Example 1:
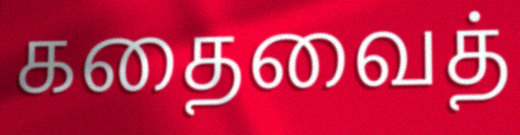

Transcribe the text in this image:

கதைவைத்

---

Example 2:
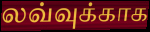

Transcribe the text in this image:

லவ்வுக்காக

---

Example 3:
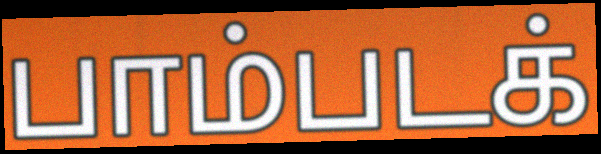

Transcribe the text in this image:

பாம்படக்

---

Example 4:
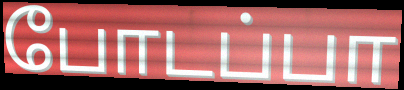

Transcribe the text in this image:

போடப்பா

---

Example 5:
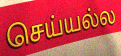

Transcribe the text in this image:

செய்யல்ல